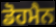
ਡੋਹਮੈਨ